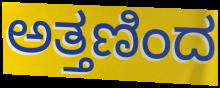
ಅತ್ತಣಿಂದ